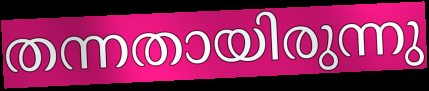
തന്നതായിരുന്നു